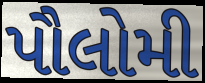
પૌલોમી